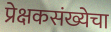
प्रेक्षकसंख्येचा